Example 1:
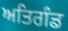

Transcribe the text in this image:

ਅਤਿਗੰਡ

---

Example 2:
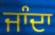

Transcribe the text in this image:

ਜਾੰਦਾ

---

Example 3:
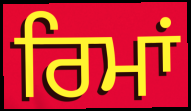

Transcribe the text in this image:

ਰਿਮਾਂ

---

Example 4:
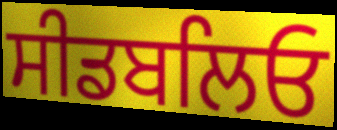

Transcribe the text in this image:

ਸੀਡਬਲਿਓ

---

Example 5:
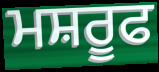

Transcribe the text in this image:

ਮਸ਼ਰੂਫ